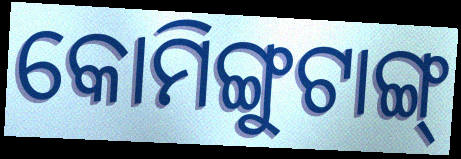
କୋମିଙ୍ଗୁଟାଙ୍ଗ୍